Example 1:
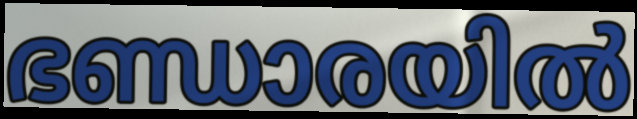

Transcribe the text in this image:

ഭണ്ഡാരയിൽ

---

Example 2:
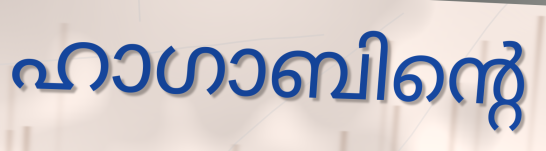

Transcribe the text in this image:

ഹാഗാബിന്റെ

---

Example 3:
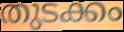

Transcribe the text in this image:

തുടക്കം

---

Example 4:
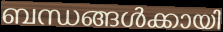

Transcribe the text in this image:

ബന്ധങ്ങൾക്കായി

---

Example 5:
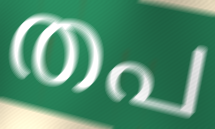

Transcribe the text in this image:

തപ